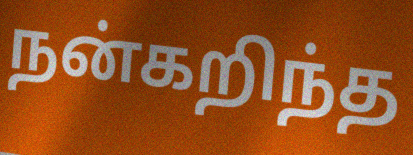
நன்கறிந்த